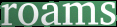
roams